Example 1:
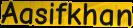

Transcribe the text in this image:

Aasifkhan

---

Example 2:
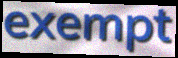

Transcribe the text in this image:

exempt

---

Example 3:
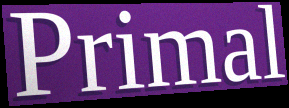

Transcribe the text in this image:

Primal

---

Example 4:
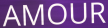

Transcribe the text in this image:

AMOUR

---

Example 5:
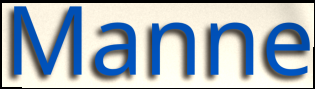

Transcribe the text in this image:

Manne